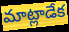
మాట్లాడేక